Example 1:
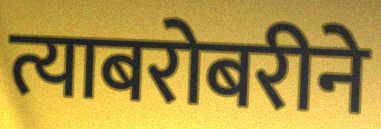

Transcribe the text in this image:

त्याबरोबरीने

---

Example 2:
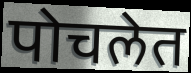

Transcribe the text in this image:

पोचलेत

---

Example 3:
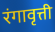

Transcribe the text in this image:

रंगावृत्ती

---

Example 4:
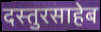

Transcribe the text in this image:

दस्तुरसाहेब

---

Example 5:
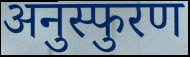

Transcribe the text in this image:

अनुस्फुरण